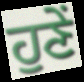
ਹੁਣੇਂ